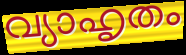
വ്യാഹൃതം